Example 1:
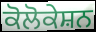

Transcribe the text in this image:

ਕੋਲੋਕੇਸ਼ਨ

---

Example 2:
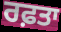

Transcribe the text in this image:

ਰਫ਼ਤਾ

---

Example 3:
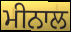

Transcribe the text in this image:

ਮੀਨਾਲ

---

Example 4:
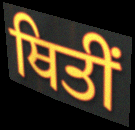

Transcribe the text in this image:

ਥਿਤੀਂ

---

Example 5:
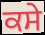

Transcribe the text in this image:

ਕਸੇ